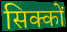
सिक्कों